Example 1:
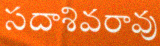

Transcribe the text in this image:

సదాశివరావు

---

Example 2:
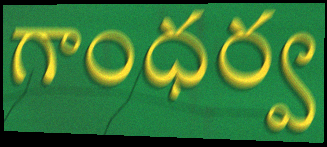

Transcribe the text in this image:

గాంధర్వ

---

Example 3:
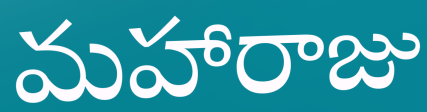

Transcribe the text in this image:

మహారాజు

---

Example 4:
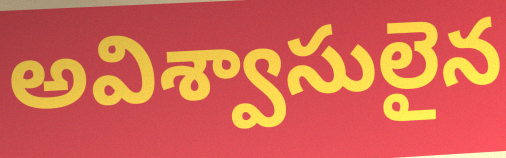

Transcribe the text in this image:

అవిశ్వాసులైన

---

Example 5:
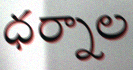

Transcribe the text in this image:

ధర్నాల